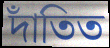
দাঁতিত